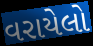
વરાયેલો